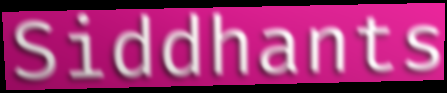
Siddhants